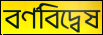
বর্ণবিদ্বেষ